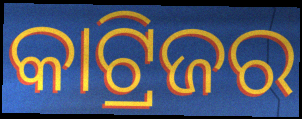
କାଟ୍ରିଜର